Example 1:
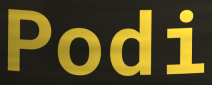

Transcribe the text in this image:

Podi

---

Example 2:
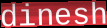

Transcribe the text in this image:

dinesh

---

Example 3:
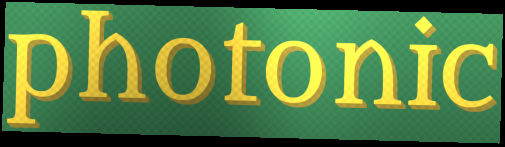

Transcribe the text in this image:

photonic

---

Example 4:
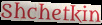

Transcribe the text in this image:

Shchetkin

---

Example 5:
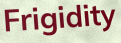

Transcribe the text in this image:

Frigidity